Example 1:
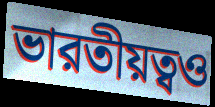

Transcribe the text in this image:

ভারতীয়ত্বও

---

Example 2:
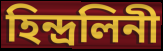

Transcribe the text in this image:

হিন্দ্রলিনী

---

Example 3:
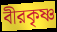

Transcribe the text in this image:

বীরকৃষ্ণ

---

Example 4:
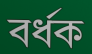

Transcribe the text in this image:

বর্ধক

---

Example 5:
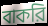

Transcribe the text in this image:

বাকরি